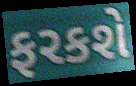
ફરકશે